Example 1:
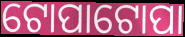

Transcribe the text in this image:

ଟୋପାଟୋପା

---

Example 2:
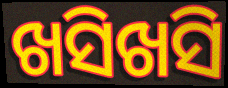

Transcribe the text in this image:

ଖସିଖସି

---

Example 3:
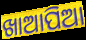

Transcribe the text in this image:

ଖାଆପିଆ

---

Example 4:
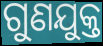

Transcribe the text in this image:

ଗୁଣଯୁକ୍ତ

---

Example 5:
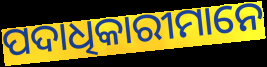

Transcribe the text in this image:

ପଦାଧିକାରୀମାନେ